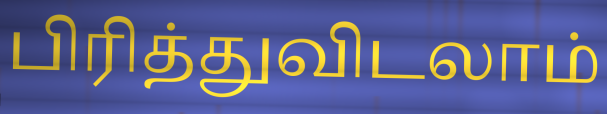
பிரித்துவிடலாம்